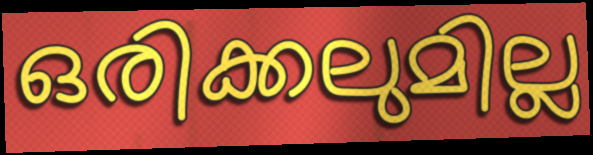
ഒരിക്കലുമില്ല